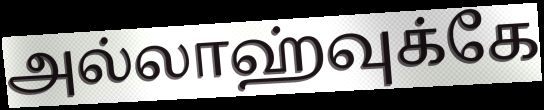
அல்லாஹ்வுக்கே